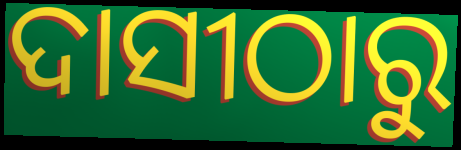
ଦାସୀଠାରୁ